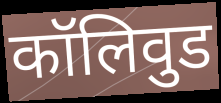
कॉलिवुड